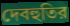
দেবহুতির